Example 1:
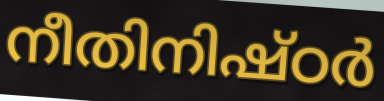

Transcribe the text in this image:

നീതിനിഷ്ഠർ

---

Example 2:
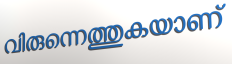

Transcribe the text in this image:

വിരുന്നെത്തുകയാണ്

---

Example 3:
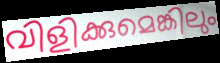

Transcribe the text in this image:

വിളിക്കുമെങ്കിലും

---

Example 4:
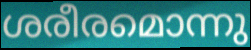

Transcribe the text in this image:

ശരീരമൊന്നു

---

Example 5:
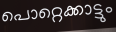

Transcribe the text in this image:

പൊറ്റെക്കാട്ടും